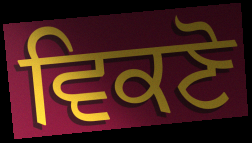
ਵਿਕਣੋ